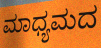
ಮಾಧ್ಯಮದ